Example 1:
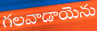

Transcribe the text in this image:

గలవాడాయెను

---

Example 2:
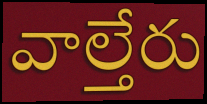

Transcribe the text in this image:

వాల్తేరు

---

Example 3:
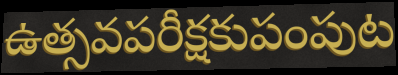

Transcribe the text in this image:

ఉత్సవపరీక్షకుపంపుట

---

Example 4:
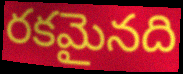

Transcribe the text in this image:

రకమైనది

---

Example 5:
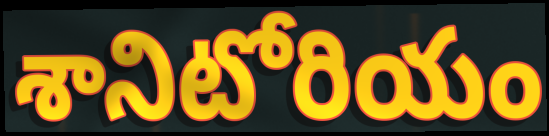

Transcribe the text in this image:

శానిటోరియం